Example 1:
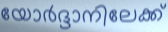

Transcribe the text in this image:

യോർദ്ദാനിലേക്ക്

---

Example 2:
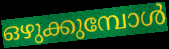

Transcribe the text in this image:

ഒഴുക്കുമ്പോൾ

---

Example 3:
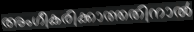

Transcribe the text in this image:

അംഗീകരിക്കാത്തതിനാൽ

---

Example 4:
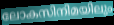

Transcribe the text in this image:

ലോകസിനിമയിലും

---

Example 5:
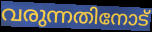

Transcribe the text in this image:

വരുന്നതിനോട്